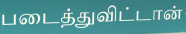
படைத்துவிட்டான்